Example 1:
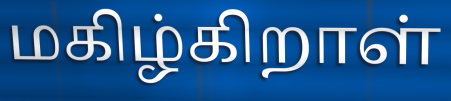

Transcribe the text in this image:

மகிழ்கிறாள்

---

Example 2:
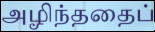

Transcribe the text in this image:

அழிந்ததைப்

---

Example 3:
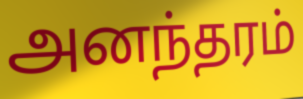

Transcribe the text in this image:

அனந்தரம்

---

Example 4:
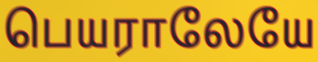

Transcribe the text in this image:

பெயராலேயே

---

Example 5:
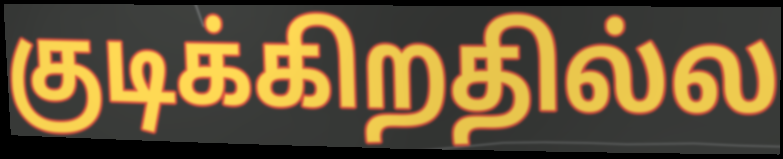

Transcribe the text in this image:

குடிக்கிறதில்ல